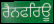
ਰੈਨਫਰਿਊ